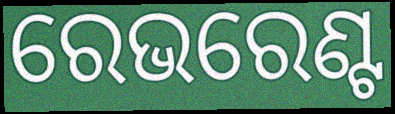
ରେଭରେଣ୍ଟ